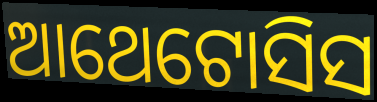
ଆଥେଟୋସିସ